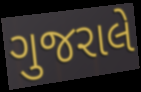
ગુજરાલે